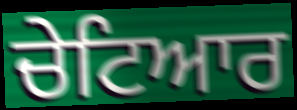
ਚੇਟਿਆਰ